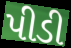
પીડી